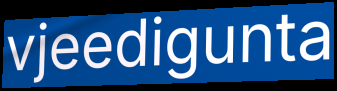
vjeedigunta